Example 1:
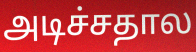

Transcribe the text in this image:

அடிச்சதால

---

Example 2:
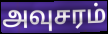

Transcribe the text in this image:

அவுசரம்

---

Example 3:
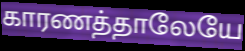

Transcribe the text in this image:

காரணத்தாலேயே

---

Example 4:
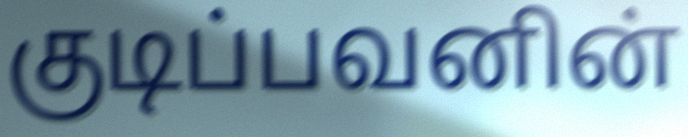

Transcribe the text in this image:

குடிப்பவனின்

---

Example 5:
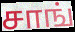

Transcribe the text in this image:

சாங்